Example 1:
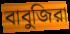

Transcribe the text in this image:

বাবুজিরা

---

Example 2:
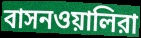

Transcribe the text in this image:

বাসনওয়ালিরা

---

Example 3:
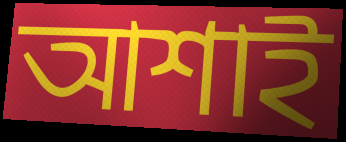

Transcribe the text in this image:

আশাই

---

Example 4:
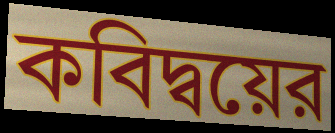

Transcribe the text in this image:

কবিদ্বয়ের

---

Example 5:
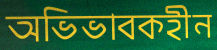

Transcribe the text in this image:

অভিভাবকহীন